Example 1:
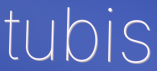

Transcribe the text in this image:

tubis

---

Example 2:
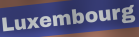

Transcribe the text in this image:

Luxembourg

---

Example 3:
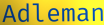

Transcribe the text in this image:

Adleman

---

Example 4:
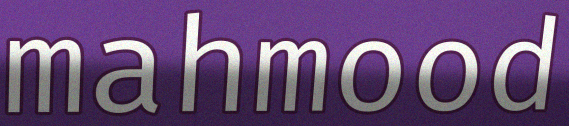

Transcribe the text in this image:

mahmood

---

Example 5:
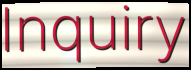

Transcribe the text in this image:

Inquiry